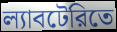
ল্যাবটেরিতে